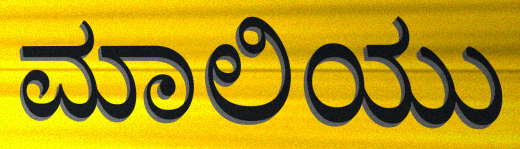
ಮಾಲಿಯು